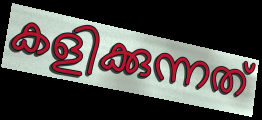
കളിക്കുന്നത്